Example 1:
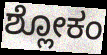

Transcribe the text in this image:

ಶ್ಲೋಕಂ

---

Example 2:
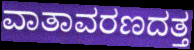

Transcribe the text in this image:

ವಾತಾವರಣದತ್ತ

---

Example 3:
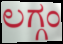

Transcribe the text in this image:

ಲಗ್ಗಂ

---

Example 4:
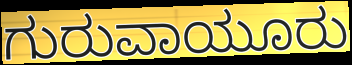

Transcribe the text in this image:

ಗುರುವಾಯೂರು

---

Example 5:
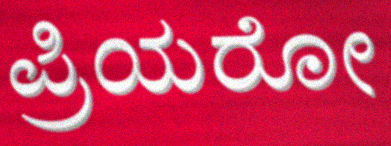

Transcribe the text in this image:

ಪ್ರಿಯರೋ